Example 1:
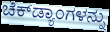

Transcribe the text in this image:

ಚೆಕ್‌ಡ್ಯಾಂಗಳನ್ನು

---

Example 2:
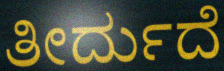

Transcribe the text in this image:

ತೀರ್ದುದೆ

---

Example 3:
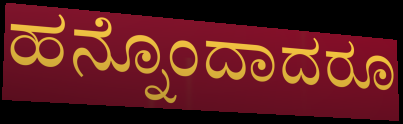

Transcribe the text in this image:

ಹನ್ನೊಂದಾದರೂ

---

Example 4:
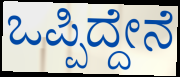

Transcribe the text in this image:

ಒಪ್ಪಿದ್ದೇನೆ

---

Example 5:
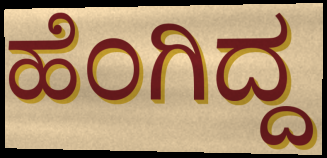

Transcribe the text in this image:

ಹೆಂಗಿದ್ದ